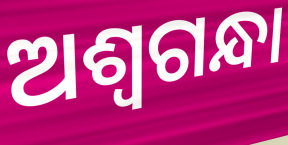
ଅଶ୍ୱଗନ୍ଧା